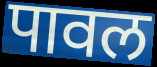
पावल